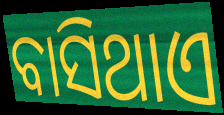
ବାସିଥାଏ